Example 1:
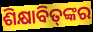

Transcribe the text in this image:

ଶିକ୍ଷାବିତ୍‌ଙ୍କର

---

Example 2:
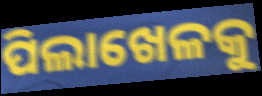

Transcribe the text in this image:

ପିଲାଖେଳକୁ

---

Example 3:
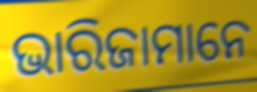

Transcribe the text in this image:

ଭାରିଜାମାନେ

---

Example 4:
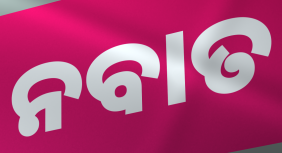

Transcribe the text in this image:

ନବାତ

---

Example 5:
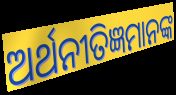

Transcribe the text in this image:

ଅର୍ଥନୀତିଜ୍ଞମାନଙ୍କ